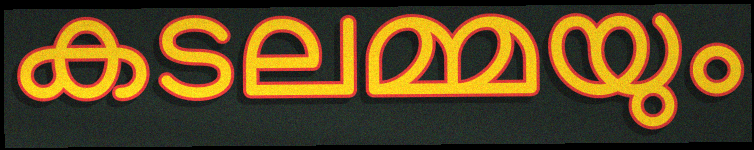
കടലമ്മയും